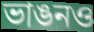
ভাঙনও